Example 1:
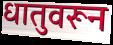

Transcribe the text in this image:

धातुवरून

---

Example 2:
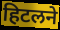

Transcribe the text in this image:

हिटलने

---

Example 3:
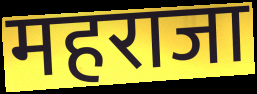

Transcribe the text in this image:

महराजा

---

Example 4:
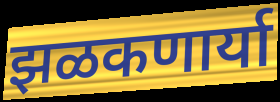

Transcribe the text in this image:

झळकणार्या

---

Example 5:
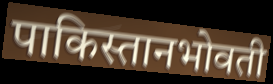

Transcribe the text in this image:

पाकिस्तानभोवती